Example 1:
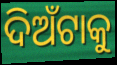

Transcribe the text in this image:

ଦିଅଁଟାକୁ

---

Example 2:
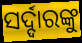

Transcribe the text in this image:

ସର୍ଦ୍ଦାରଙ୍କୁ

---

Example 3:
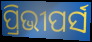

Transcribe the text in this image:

ପ୍ରିଭୀପର୍ସ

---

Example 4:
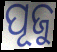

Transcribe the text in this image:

ପୂଜୁ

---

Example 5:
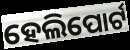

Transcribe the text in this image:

ହେଲିପୋର୍ଟ